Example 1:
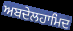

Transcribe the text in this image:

ਅਬਦੇਲਹਾਮਿਦ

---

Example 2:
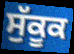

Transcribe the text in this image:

ਸੁੱਕੂਕ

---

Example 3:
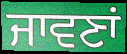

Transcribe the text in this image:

ਜਾਵਣਾਂ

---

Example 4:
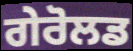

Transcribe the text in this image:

ਗੇਰੋਲਡ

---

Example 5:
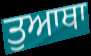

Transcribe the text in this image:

ਤੁਆਥਾ